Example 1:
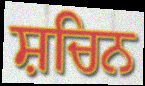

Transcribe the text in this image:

ਸ਼ਚਿਨ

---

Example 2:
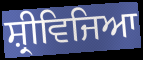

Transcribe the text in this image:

ਸ਼੍ਰੀਵਿਜਿਆ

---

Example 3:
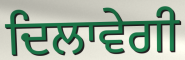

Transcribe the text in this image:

ਦਿਲਾਵੇਗੀ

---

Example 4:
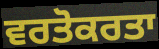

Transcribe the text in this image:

ਵਰਤੋਕਰਤਾ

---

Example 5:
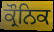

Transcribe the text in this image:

ਕ੍ਰੌਨਿਕ